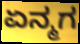
ಏನ್ಮಗ